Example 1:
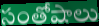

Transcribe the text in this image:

సంతోషాలు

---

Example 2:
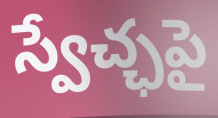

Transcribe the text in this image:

స్వేచ్ఛపై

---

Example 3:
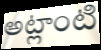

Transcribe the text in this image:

అట్లాంటి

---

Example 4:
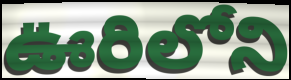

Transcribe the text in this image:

ఊరిలోని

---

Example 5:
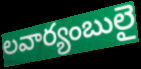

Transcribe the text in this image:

లవార్యంబులై